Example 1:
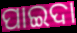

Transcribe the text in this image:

ପାଇଦା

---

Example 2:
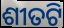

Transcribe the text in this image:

ଶୀତଟି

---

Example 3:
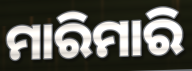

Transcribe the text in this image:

ମାରିମାରି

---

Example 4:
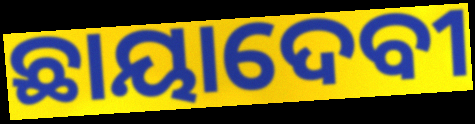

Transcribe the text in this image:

ଛାୟାଦେବୀ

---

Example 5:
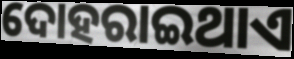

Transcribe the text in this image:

ଦୋହରାଇଥାଏ